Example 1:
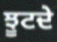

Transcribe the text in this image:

ਝੂਟਦੇ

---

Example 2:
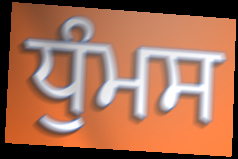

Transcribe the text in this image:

ਧੁੰਮਸ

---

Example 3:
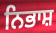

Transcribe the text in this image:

ਨਿਭਾਸ਼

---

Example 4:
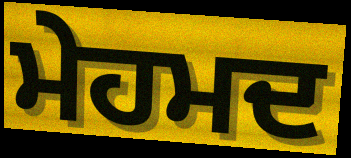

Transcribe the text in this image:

ਮੇਹਮਦ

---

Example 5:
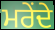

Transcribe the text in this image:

ਮਰੇਂਦੇ